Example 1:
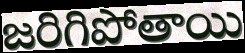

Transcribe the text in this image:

జరిగిపోతాయి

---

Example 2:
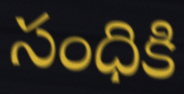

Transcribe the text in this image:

సంధికి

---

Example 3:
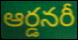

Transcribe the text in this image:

ఆర్డనరీ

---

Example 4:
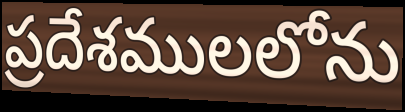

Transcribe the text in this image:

ప్రదేశములలోను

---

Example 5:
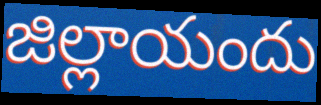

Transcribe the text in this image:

జిల్లాయందు